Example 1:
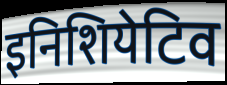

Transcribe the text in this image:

इनिशियेटिव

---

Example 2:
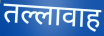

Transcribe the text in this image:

तल्लावाह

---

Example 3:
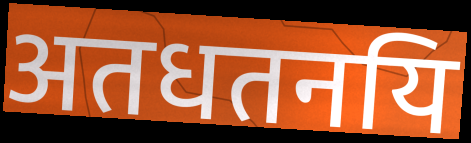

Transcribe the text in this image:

अतधतनयि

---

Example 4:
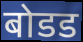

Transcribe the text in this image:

बोडड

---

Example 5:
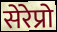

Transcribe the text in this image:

सेरेप्रो